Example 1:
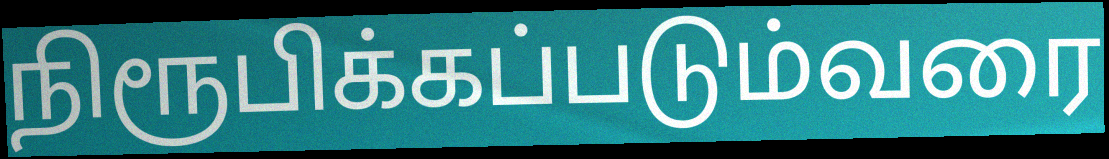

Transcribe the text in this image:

நிரூபிக்கப்படும்வரை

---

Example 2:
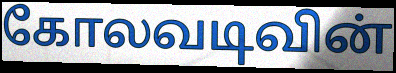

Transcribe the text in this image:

கோலவடிவின்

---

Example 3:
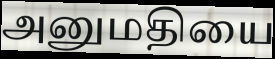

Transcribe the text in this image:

அனுமதியை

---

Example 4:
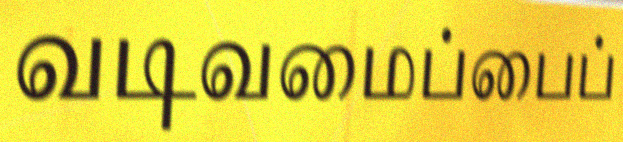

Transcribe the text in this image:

வடிவமைப்பைப்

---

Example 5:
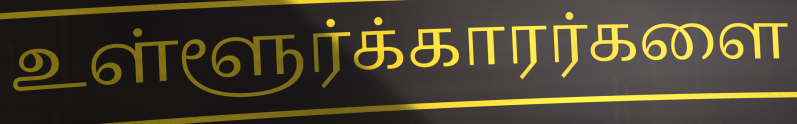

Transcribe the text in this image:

உள்ளூர்க்காரர்களை